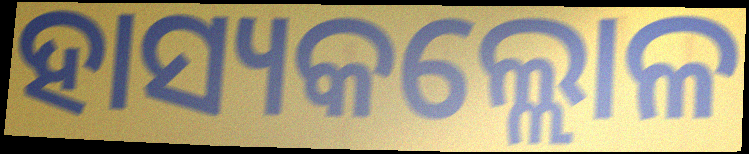
ହାସ୍ୟକଲ୍ଲୋଳ